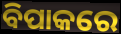
ବିପାକରେ